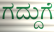
ಗದ್ದುಗೆ